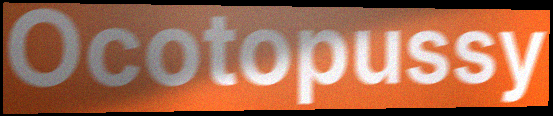
Ocotopussy